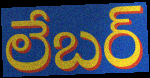
లేబర్